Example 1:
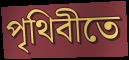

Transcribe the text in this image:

পৃথিবীতে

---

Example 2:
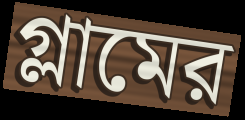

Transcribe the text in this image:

গ্লামের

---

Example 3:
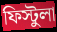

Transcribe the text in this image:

ফিস্টুলা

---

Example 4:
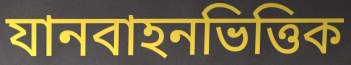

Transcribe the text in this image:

যানবাহনভিত্তিক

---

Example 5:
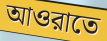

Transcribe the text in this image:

আওরাতে